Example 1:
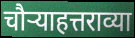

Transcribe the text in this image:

चौऱ्याहत्तराव्या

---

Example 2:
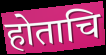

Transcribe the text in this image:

होताचि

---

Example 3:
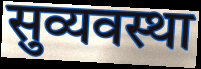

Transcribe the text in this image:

सुव्यवस्था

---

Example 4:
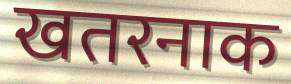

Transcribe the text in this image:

खतरनाक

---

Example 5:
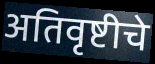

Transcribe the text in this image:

अतिवृष्टीचे